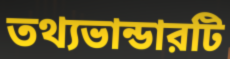
তথ্যভান্ডারটি